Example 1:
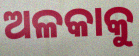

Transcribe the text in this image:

ଅଳକାକୁ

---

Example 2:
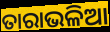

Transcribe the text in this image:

ତାରାଭଳିଆ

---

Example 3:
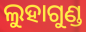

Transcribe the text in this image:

ଲୁହାଗୁଣ୍ଡ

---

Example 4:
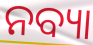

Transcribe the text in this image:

ନବ୍ୟା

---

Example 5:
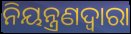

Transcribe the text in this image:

ନିୟନ୍ତ୍ରଣଦ୍ବାରା